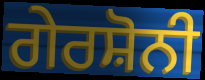
ਗੇਰਸ਼ੋਨੀ